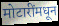
मोटारींमधून